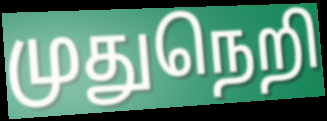
முதுநெறி